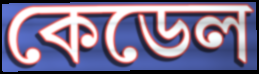
কেডেল